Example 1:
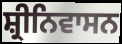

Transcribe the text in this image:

ਸ਼੍ਰੀਨਿਵਾਸਨ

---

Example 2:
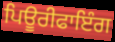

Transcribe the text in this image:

ਪਿਊਰੀਫਾਇੰਗ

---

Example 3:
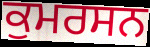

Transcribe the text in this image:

ਕੁਮਰਸਨ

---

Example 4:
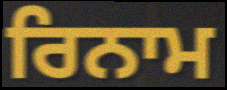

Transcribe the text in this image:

ਰਿਨਾਮ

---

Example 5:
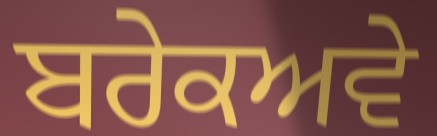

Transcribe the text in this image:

ਬਰੇਕਅਵੇ